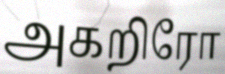
அகறிரோ